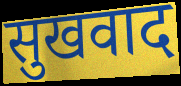
सुखवाद